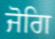
ਜੋਗਿ